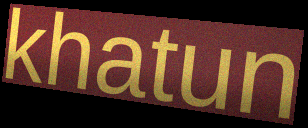
khatun